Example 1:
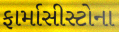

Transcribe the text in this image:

ફાર્માસીસ્ટોના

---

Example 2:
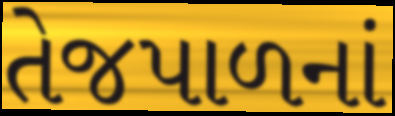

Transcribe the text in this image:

તેજપાળનાં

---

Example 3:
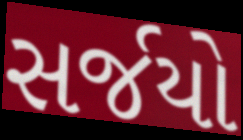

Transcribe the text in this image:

સર્જયો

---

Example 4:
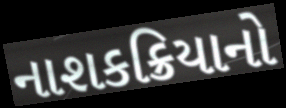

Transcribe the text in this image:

નાશકક્રિયાનો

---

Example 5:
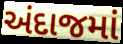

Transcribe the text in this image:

અંદાજમાં